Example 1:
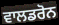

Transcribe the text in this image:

ਵਾਲਡਰੋਨ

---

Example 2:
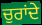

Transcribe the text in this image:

ਚੁਰਾਂਦੇ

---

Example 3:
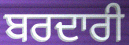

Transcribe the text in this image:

ਬਰਦਾਰੀ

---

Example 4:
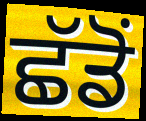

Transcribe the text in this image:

ਛੱਡੋਂ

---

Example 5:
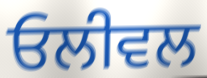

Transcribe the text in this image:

ਓਲੀਵਲ